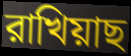
রাখিয়াছ